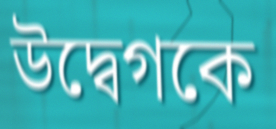
উদ্বেগকে